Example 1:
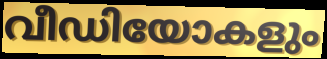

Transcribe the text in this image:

വീഡിയോകളും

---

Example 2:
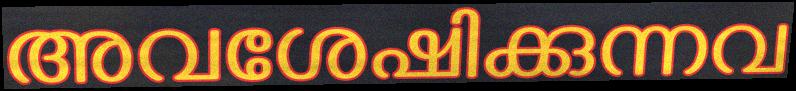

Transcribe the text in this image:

അവശേഷിക്കുന്നവ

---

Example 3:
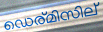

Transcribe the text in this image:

ഡെര്മിസില്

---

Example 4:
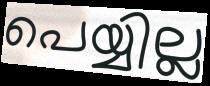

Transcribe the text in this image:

പെയ്യില്ല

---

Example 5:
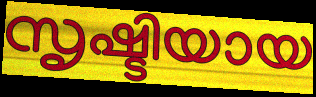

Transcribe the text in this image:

സൃഷ്ടിയായ